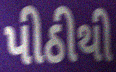
પીઠીથી